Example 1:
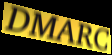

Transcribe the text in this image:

DMARC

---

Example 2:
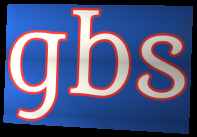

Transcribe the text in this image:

gbs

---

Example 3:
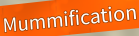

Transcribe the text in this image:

Mummification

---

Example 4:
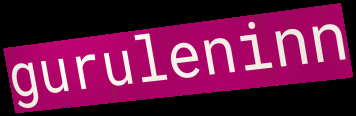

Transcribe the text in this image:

guruleninn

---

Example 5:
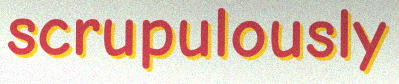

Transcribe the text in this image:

scrupulously